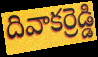
దివాకర్రెడ్డి